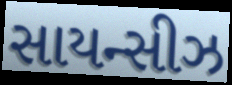
સાયન્સીઝ